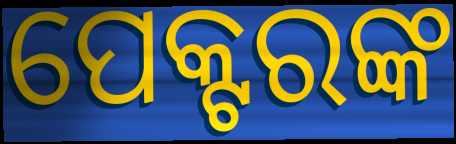
ପେକ୍ଟରଙ୍କ